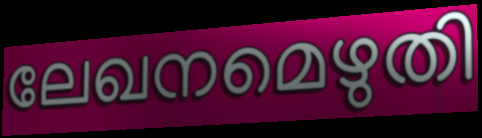
ലേഖനമെഴുതി